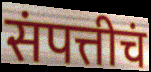
संपत्तीचं